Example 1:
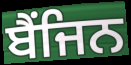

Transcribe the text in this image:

ਬੈਂਜਿਨ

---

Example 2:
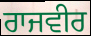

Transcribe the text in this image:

ਰਾਜਵੀਰ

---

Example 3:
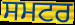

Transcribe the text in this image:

ਸਮਟਰ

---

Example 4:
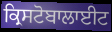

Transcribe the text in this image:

ਕ੍ਰਿਸਟੋਬਾਲਾਈਟ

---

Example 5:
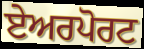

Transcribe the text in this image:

ਏਅਰਪੋਰਟ